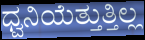
ಧ್ವನಿಯೆತ್ತುತ್ತಿಲ್ಲ